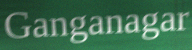
Ganganagar